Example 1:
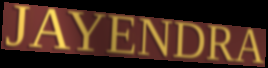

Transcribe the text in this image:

JAYENDRA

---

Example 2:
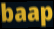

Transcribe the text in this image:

baap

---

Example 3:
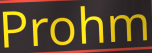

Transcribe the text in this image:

Prohm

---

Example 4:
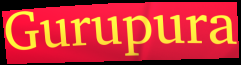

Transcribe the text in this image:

Gurupura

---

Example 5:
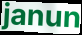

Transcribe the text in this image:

janun